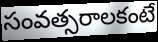
సంవత్సరాలకంటే